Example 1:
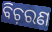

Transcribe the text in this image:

ବିଚ଼ରଣ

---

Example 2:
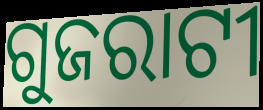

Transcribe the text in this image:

ଗୁଜରାଟୀ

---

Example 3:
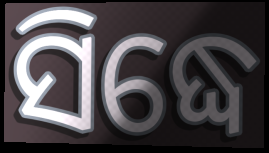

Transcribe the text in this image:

ସିଦ୍ଧେ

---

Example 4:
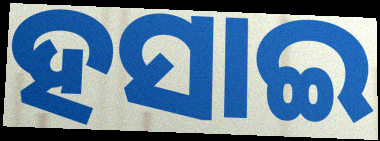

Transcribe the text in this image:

ହସାଇ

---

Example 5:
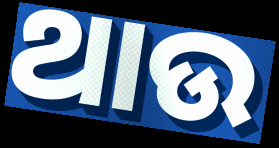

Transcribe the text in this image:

ଥାଉ